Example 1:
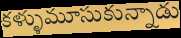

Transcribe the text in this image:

కళ్ళుమూసుకున్నాడు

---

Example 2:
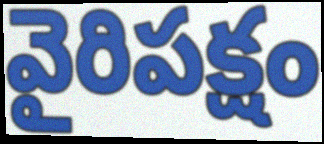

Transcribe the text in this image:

వైరిపక్షం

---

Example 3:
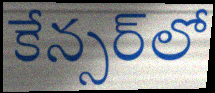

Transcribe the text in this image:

కేన్సర్‌లో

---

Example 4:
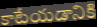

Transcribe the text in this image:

కాటేయడానికి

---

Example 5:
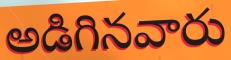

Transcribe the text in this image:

అడిగినవారు